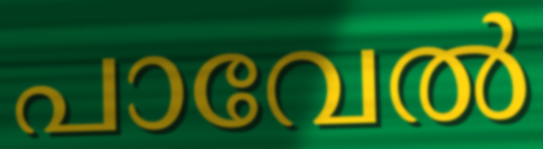
പാവേൽ